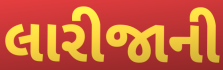
લારીજાની